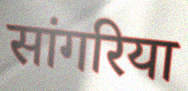
सांगरिया